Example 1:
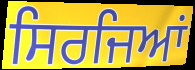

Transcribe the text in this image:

ਸਿਰਜਿਆਂ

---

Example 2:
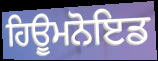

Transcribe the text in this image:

ਹਿਊਮਨੋਇਡ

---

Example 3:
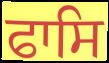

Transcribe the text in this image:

ਫਾਸਿ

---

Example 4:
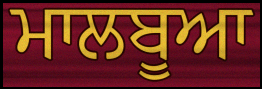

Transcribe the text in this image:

ਮਾਲਬੂਆ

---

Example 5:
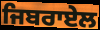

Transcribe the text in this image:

ਜਿਬਰਾਏਲ